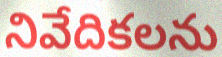
నివేదికలను